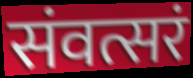
संवत्सरं